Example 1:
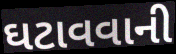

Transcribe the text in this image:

ઘટાવવાની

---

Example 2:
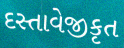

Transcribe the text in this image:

દસ્તાવેજીકૃત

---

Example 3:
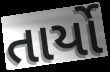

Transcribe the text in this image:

તાર્યો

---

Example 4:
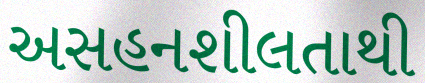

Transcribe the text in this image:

અસહનશીલતાથી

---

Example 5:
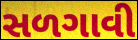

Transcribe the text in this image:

સળગાવી